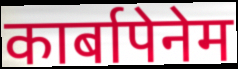
कार्बापेनेम